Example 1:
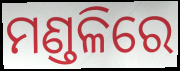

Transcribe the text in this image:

ମଣ୍ଡଳିରେ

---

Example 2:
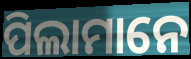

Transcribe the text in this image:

ପିଲାମାନେ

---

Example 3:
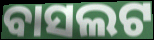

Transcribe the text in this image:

ବାସଲଟ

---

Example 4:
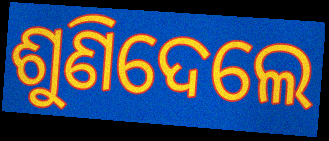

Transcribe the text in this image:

ଶୁଣିଦେଲେ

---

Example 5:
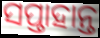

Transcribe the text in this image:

ସପ୍ତାହାନ୍ତ